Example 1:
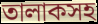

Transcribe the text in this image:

তালাকসহ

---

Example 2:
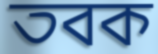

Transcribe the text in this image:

তবক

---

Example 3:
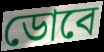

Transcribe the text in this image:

ডোবে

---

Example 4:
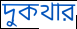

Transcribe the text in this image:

দুকথার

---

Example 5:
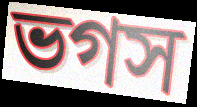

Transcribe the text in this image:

ভগস